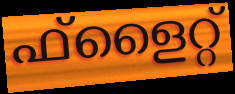
ഫ്ളൈറ്റ്